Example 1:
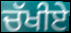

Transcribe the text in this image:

ਚੱਖੀਏ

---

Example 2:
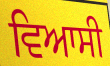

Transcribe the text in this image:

ਵਿਆਸੀ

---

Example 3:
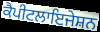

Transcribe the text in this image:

ਕੈਪੀਟਲਾਇਜੇਸ਼ਨ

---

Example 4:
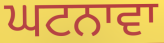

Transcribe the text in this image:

ਘਟਨਾਵਾ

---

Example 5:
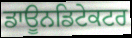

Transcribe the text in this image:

ਡਾਊਨਡਿਟੇਕਟਰ